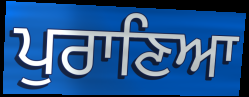
ਪੁਰਾਣਿਆ